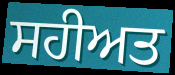
ਸਹੀਅਤ